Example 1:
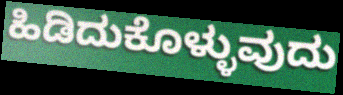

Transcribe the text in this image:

ಹಿಡಿದುಕೊಳ್ಳುವುದು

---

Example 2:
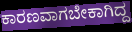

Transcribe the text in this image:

ಕಾರಣವಾಗಬೇಕಾಗಿದ್ದ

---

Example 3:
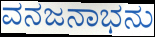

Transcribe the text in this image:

ವನಜನಾಭನು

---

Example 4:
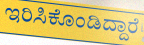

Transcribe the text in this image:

ಇರಿಸಿಕೊಂಡಿದ್ದಾರೆ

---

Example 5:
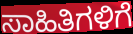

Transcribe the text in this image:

ಸಾಹಿತಿಗಳಿಗೆ